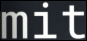
mit